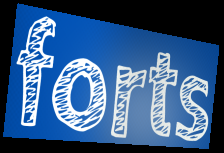
forts